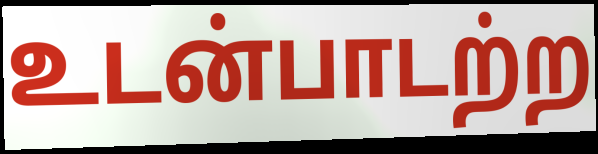
உடன்பாடற்ற